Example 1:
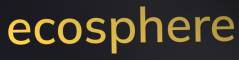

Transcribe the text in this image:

ecosphere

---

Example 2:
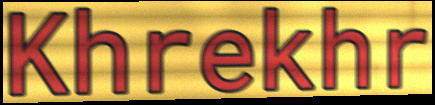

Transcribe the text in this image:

Khrekhr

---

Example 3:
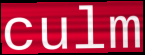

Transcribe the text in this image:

culm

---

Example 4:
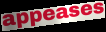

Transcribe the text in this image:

appeases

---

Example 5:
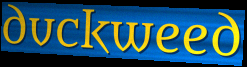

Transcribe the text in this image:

duckweed